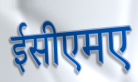
ईसीएमए